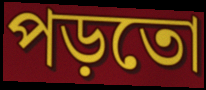
পড়তো